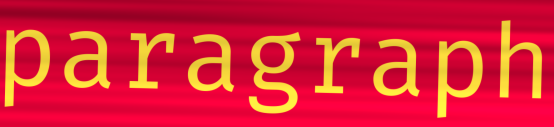
paragraph